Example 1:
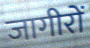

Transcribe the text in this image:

जागीरों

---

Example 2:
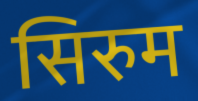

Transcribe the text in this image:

सिरुम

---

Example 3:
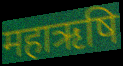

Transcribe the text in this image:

महाऋषि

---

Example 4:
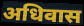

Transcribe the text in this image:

अधिवास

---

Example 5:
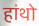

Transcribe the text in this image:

हांथो